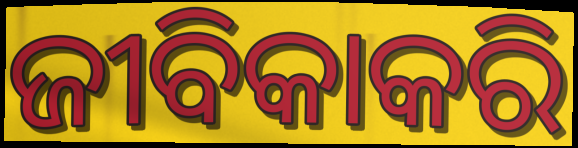
ଜୀବିକାକରି